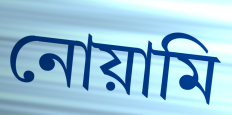
নোয়ামি